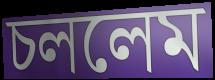
চললেম